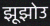
झूझोउ